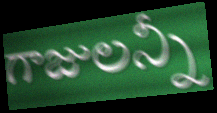
గాజులన్నీ